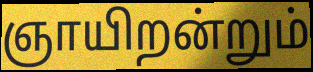
ஞாயிறன்றும்